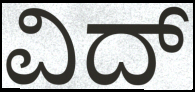
ವಿದ್